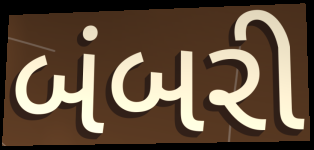
બંબરી